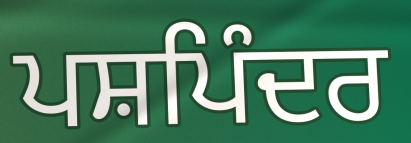
ਪਸ਼ਪਿੰਦਰ